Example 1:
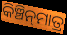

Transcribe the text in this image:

କିଞ୍ଚିନ୍‍ମାତ୍ର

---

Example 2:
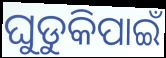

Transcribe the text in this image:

ଘୁଡୁକିପାଇଁ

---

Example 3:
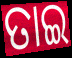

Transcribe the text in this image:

ତାଇ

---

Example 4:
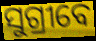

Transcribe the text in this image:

ସୁଗ୍ରୀବେ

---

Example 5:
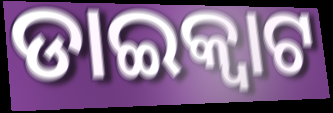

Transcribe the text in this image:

ଡାଇକ୍ଵାଟ